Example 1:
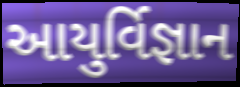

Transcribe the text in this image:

આયુર્વિજ્ઞાન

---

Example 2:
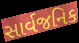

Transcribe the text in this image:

સાર્વજનિક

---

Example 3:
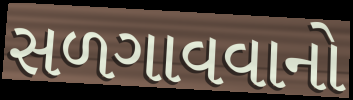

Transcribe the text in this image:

સળગાવવાનો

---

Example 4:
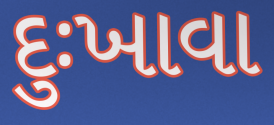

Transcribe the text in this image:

દુઃખાવા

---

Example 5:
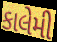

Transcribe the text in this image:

કાલેમી